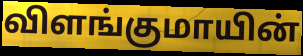
விளங்குமாயின்